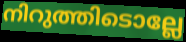
നിറുത്തിടൊല്ലേ